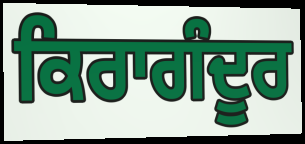
ਕਿਰਾਗੰਦੂਰ